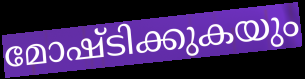
മോഷ്ടിക്കുകയും